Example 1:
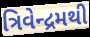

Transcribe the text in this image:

ત્રિવેન્દ્રમથી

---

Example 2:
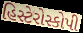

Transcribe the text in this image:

હિસ્ટેરોસ્કોપી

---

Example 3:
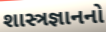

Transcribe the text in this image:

શાસ્ત્રજ્ઞાનનો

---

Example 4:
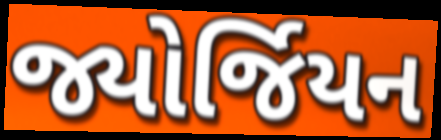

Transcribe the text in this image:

જ્યોર્જિયન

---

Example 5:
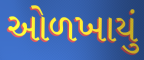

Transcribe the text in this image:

ઓળખાયું